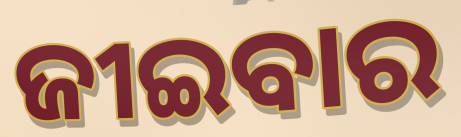
ଜୀଇବାର